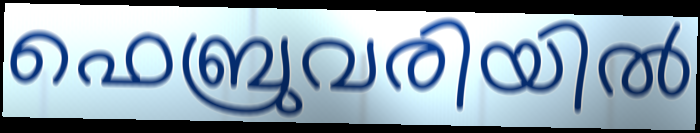
ഫെബ്രുവരിയിൽ